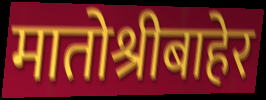
मातोश्रीबाहेर